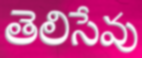
తెలిసేవు